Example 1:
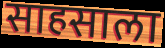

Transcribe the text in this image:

साहसाला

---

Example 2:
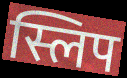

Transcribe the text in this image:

स्लिप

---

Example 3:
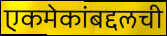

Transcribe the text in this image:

एकमेकांबद्दलची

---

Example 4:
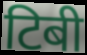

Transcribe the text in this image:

टिबी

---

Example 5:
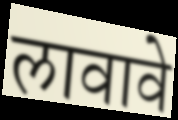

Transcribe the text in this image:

लावावे